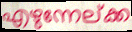
എഴുന്നേല്ക്ക